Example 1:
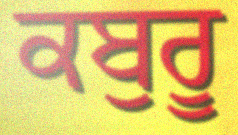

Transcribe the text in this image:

ਕਬੁਰੂ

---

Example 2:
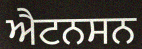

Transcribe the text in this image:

ਐਟਨਸਨ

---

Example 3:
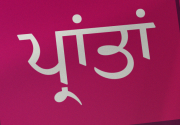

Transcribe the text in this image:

ਪ੍ਰਾਂਤਾਂ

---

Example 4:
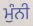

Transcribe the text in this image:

ਮੁੰਨੀ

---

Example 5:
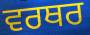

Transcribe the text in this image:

ਵਰਥਰ